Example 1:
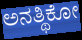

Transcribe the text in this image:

ಅನತ್ಥಿಕೋ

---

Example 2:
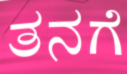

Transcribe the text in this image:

ತನಗೆ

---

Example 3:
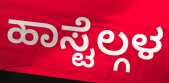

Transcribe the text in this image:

ಹಾಸ್ಟೆಲ್ಗಳ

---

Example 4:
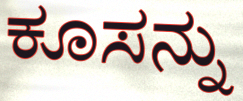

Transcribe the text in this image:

ಕೂಸನ್ನು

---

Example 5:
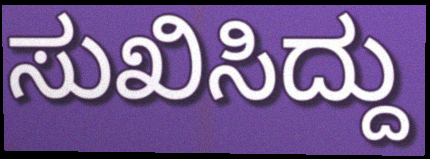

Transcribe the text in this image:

ಸುಖಿಸಿದ್ದು